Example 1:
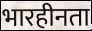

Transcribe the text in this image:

भारहीनता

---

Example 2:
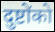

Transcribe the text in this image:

दुष्टोंको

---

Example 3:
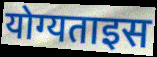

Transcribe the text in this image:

योग्यताइस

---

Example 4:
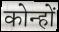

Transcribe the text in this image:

कोन्हों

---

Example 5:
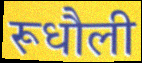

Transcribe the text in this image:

रूधौली